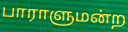
பாராளுமன்ற